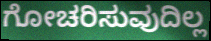
ಗೋಚರಿಸುವುದಿಲ್ಲ